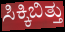
ಸಿಕ್ಕಿಬಿತ್ತು